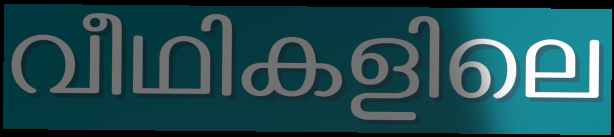
വീഥികളിലെ